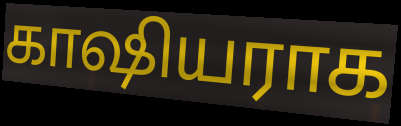
காஷியராக